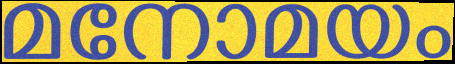
മനോമയം